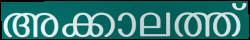
അക്കാലത്ത്